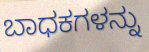
ಬಾಧಕಗಳನ್ನು